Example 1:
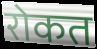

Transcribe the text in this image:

रोकत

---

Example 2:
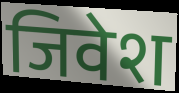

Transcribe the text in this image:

जिवेश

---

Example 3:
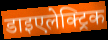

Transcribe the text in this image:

डाइएलेक्ट्रिक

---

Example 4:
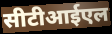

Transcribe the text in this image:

सीटीआईएल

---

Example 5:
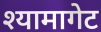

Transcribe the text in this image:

श्यामागेट